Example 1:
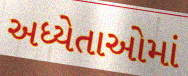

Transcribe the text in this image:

અધ્યેતાઓમાં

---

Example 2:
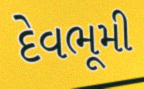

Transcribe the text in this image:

દેવભૂમી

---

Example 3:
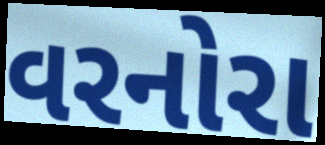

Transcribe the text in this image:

વરનોરા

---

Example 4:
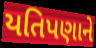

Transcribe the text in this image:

યતિપણાને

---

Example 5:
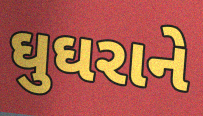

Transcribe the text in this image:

ઘુઘરાને